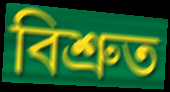
বিশ্রুত